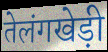
तेलंगखेड़ी